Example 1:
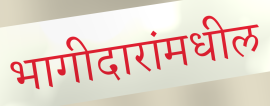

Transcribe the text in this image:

भागीदारांमधील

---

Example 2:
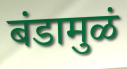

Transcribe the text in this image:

बंडामुळं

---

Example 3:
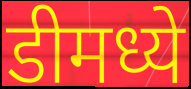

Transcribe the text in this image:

डीमध्ये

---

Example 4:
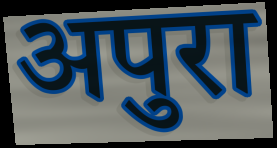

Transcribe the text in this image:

अपुरा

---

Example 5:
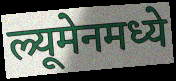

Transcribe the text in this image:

ल्यूमेनमध्ये